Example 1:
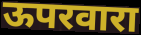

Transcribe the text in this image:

ऊपरवारा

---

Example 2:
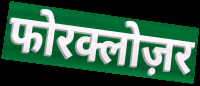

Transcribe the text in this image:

फोरक्लोज़र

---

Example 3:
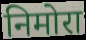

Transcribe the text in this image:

निमोरा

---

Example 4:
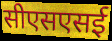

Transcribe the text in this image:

सीएसएसई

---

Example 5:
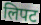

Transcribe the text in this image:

लिपट